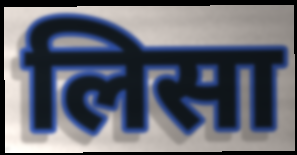
लिसा